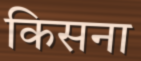
किसना